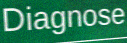
Diagnose